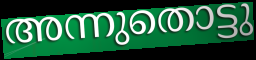
അന്നുതൊട്ടു